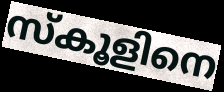
സ്കൂളിനെ